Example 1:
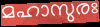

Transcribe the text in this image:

മഹാസുരഃ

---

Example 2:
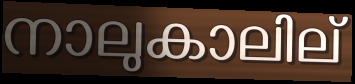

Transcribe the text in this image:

നാലുകാലില്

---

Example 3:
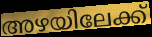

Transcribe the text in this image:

അഴയിലേക്ക്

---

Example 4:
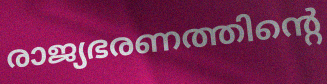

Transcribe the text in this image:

രാജ്യഭരണത്തിന്റെ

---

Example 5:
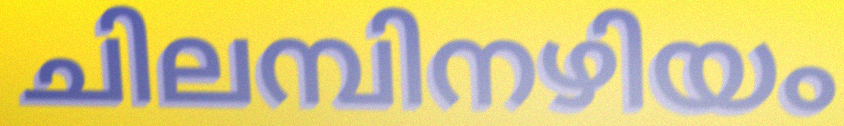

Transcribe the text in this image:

ചിലമ്പിനഴിയം